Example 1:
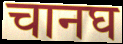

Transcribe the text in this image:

चानघ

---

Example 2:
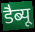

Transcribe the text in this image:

डैब्यू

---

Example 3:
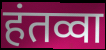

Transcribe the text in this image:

हंतव्वा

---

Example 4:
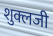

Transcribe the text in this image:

शुक्‍लजी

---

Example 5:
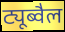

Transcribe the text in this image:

ट्यूब्वैल